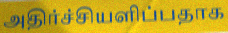
அதிர்ச்சியளிப்பதாக